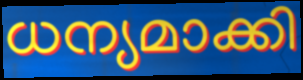
ധന്യമാക്കി